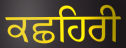
ਕਛਹਿਰੀ